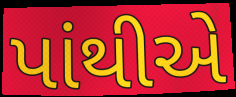
પાંથીએ